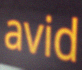
avid